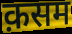
क़सम